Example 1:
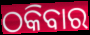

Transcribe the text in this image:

ଠକିବାର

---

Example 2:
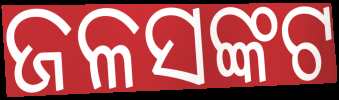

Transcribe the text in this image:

ଜଳସଙ୍କଟ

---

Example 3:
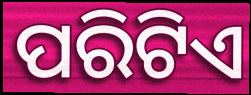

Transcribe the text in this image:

ପରିଟିଏ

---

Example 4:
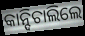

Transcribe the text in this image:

କାନ୍ଦିଚାଲିଲେ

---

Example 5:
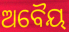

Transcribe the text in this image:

ଅବୈୟ